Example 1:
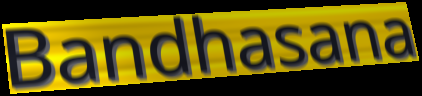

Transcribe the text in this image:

Bandhasana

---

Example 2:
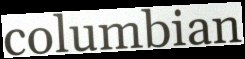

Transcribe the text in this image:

columbian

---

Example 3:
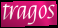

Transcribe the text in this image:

tragos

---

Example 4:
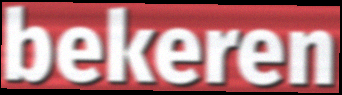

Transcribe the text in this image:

bekeren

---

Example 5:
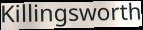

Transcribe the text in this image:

Killingsworth